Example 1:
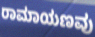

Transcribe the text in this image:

ರಾಮಾಯಣವು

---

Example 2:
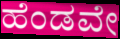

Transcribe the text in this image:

ಹೆಂಡವೇ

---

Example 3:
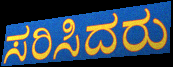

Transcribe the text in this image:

ಸರಿಸಿದರು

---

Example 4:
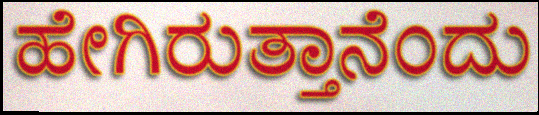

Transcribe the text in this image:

ಹೇಗಿರುತ್ತಾನೆಂದು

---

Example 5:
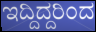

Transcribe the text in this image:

ಇದ್ದಿದ್ದರಿಂದ